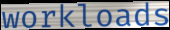
workloads